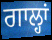
ਗਾਲ੍ਹਾਂ